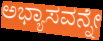
ಅಭ್ಯಾಸವನ್ನೇ